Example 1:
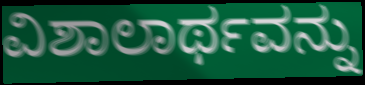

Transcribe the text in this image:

ವಿಶಾಲಾರ್ಥವನ್ನು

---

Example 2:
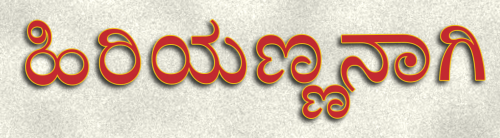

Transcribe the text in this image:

ಹಿರಿಯಣ್ಣನಾಗಿ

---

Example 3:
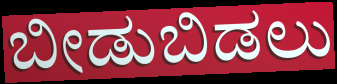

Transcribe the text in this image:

ಬೀಡುಬಿಡಲು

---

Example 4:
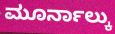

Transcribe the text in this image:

ಮೂರ್ನಾಲ್ಕು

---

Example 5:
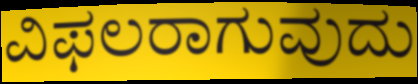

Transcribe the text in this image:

ವಿಫಲರಾಗುವುದು